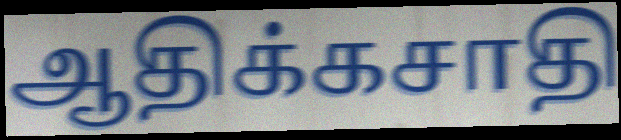
ஆதிக்கசாதி